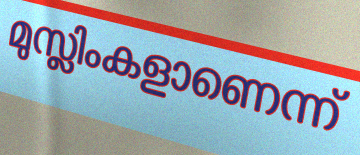
മുസ്ലിംകളാണെന്ന്